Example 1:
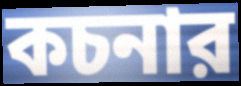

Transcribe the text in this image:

কচনার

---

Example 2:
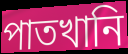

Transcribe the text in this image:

পাতখানি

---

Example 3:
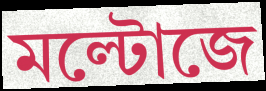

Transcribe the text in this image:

মল্টোজে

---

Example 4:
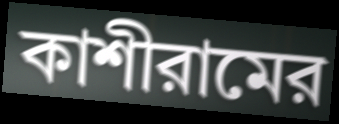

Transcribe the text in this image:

কাশীরামের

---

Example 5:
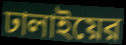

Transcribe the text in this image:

ঢালাইয়ের